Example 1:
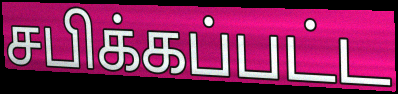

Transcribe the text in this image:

சபிக்கப்பட்ட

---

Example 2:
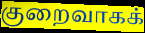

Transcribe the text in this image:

குறைவாகக்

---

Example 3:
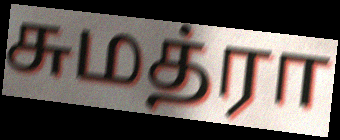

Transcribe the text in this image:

சுமத்ரா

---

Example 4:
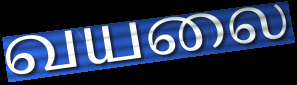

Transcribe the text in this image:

வயலை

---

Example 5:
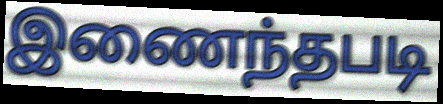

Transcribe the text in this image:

இணைந்தபடி